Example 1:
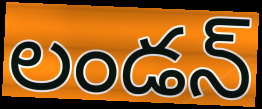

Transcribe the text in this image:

లండన్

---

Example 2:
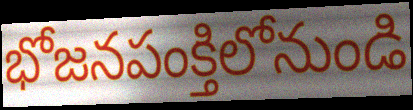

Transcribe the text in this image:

భోజనపంక్తిలోనుండి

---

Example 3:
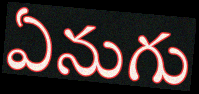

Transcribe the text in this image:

ఏనుగు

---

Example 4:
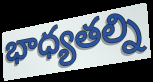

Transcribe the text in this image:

భాధ్యతల్ని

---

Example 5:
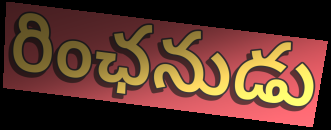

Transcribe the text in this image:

రింఛనుడు